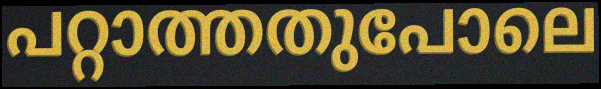
പറ്റാത്തതുപോലെ